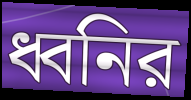
ধ্বনির